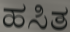
ಹಸಿತ